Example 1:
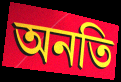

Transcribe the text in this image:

অনতি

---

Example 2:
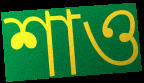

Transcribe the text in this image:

শাও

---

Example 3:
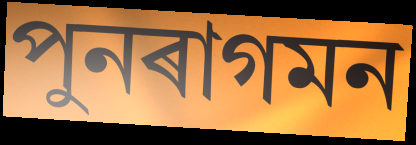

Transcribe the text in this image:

পুনৰাগমন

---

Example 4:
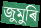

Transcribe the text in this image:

জুমুৰি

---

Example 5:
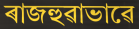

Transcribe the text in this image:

ৰাজহুৱাভাৱে